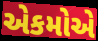
એકમોએ